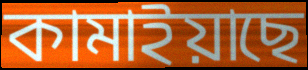
কামাইয়াছে